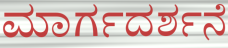
ಮಾರ್ಗದರ್ಶನೆ